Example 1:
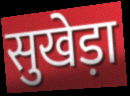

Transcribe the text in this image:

सुखेड़ा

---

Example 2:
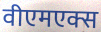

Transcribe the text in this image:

वीएमएक्स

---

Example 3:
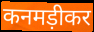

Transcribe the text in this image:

कनमड़ीकर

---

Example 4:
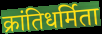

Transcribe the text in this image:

क्रांतिधर्मिता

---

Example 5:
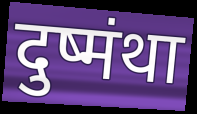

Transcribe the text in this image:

दुष्मंथा